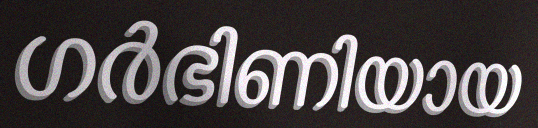
ഗർഭിണിയായ